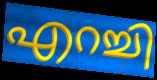
എറച്ചി